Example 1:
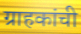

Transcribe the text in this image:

ग्राहकांची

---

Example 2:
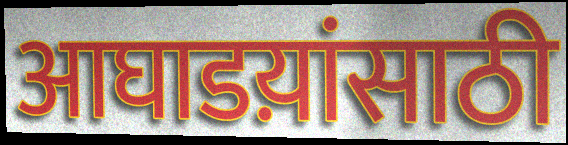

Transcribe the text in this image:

आघाडय़ांसाठी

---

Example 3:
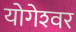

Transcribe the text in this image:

योगेश्‍वर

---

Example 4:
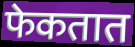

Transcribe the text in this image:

फेकतात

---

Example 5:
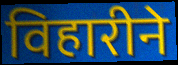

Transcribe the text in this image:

विहारीने